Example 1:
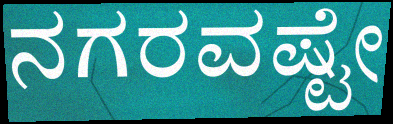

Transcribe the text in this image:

ನಗರವಷ್ಟೇ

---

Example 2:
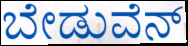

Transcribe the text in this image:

ಬೇಡುವೆನ್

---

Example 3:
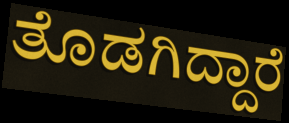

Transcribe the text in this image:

ತೊಡಗಿದ್ದಾರೆ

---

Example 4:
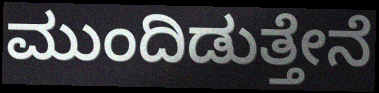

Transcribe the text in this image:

ಮುಂದಿಡುತ್ತೇನೆ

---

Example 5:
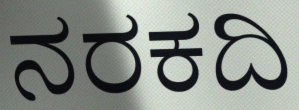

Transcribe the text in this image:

ನರಕದಿ